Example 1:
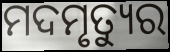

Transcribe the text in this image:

ମଦମୃତ୍ୟୁର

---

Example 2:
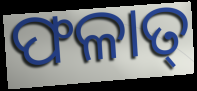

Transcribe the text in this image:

ଫଳାତ୍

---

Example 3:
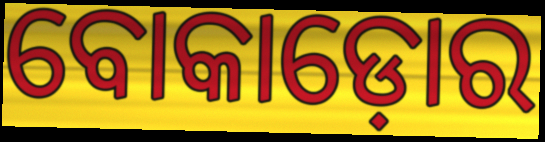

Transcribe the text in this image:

ବୋକାଡ଼ୋର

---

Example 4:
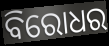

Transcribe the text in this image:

ବିରୋଧର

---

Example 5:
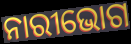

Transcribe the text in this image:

ନାରୀଭୋଗ